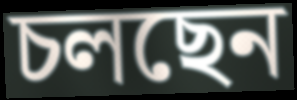
চলছেন